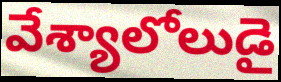
వేశ్యాలోలుడై